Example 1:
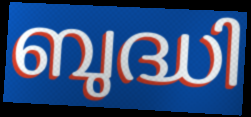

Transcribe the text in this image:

ബുദ്ധി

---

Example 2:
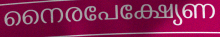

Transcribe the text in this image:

നൈരപേക്ഷ്യേണ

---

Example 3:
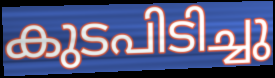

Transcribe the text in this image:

കുടപിടിച്ചു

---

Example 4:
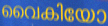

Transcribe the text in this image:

വൈകിയോ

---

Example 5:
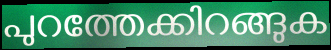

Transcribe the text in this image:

പുറത്തേക്കിറങ്ങുക